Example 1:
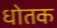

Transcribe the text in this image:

धोतक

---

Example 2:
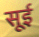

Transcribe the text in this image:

सूई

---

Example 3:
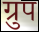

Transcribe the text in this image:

ग्रुप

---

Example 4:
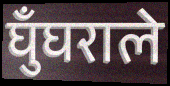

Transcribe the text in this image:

घुँघराले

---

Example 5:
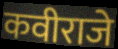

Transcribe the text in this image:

कवीराजे